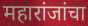
महारांजांचा